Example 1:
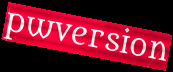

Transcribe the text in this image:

pwversion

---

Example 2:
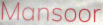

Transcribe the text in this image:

Mansoor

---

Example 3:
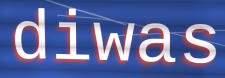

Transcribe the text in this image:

diwas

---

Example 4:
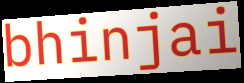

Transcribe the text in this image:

bhinjai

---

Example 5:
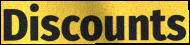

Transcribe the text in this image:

Discounts